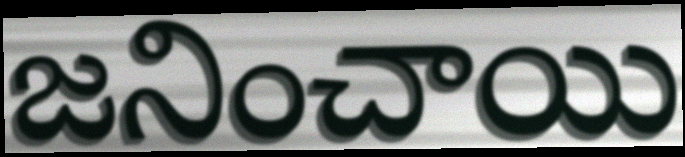
జనించాయి